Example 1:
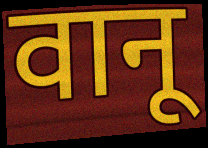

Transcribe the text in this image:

वानू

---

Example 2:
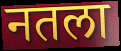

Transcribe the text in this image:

नतला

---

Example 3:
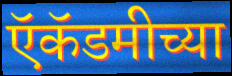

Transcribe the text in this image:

ऍकॅडमीच्या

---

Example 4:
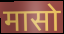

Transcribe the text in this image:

मासो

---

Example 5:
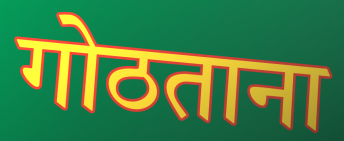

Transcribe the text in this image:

गोठताना